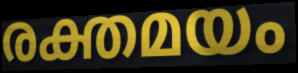
രക്തമയം